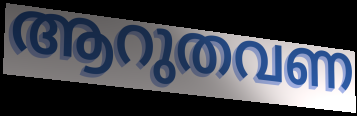
ആറുതവണ